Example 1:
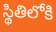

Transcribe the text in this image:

స్థితిలోకి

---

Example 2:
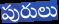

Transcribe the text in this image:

పురులు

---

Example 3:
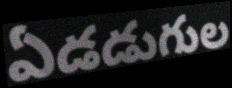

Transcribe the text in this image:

ఏడడుగుల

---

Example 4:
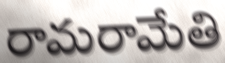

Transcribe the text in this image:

రామరామేతి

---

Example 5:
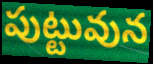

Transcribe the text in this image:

పుట్టువున